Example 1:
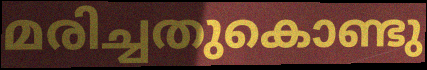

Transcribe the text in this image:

മരിച്ചതുകൊണ്ടു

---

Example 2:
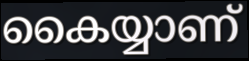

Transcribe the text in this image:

കൈയ്യാണ്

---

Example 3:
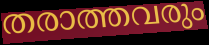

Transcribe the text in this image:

തരാത്തവരും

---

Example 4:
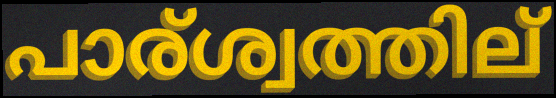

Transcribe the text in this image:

പാര്ശ്വത്തില്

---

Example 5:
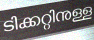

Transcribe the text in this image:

ടിക്കറ്റിനുള്ള